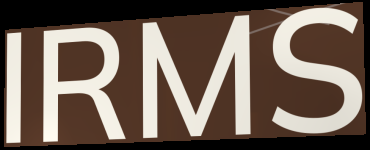
IRMS